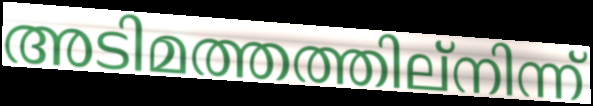
അടിമത്തത്തില്നിന്ന്